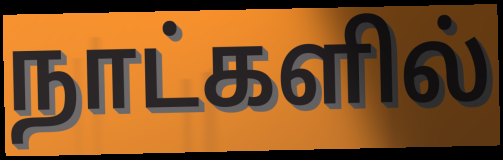
நாட்களில்